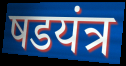
षडयंत्र